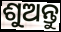
ଶୁଅନ୍ତୁ